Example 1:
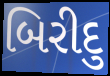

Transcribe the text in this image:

બિરીદુ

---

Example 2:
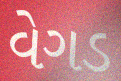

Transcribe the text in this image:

વેગડ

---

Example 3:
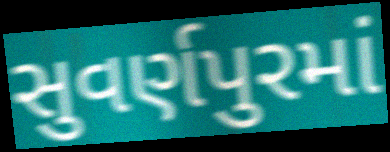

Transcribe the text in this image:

સુવર્ણપુરમાં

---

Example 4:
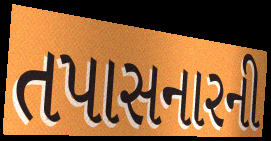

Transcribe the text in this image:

તપાસનારની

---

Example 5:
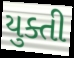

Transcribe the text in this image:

યુક્તી